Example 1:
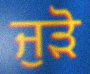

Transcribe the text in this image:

ਜੁੜੋ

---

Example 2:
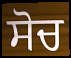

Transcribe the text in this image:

ਸੋਚ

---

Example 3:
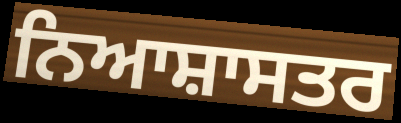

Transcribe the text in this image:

ਨਿਆਸ਼ਾਸਤਰ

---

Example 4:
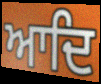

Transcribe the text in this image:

ਆਦਿ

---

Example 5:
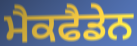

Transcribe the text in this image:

ਮੈਕਫੈਡੇਨ